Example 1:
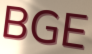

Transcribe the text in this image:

BGE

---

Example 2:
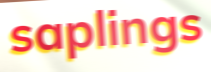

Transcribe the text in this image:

saplings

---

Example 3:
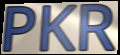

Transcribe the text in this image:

PKR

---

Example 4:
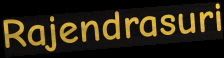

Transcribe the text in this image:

Rajendrasuri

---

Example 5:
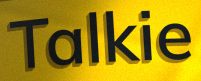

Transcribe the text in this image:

Talkie